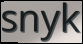
snyk